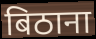
बिठाना